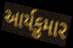
આર્યકુમાર